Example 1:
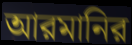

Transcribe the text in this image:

আরমানির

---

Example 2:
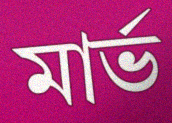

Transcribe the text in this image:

মার্ভ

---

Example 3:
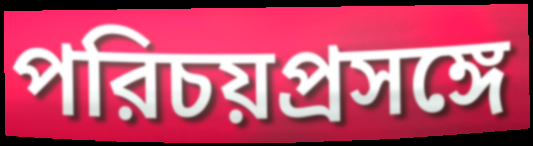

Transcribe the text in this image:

পরিচয়প্রসঙ্গে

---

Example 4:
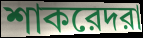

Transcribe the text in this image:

শাকরেদরা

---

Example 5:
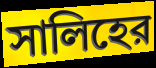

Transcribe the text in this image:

সালিহের